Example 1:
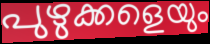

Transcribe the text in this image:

പുഴുക്കളെയും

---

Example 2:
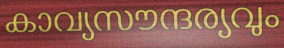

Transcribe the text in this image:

കാവ്യസൗന്ദര്യവും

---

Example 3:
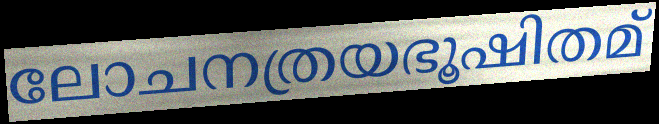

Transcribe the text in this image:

ലോചനത്രയഭൂഷിതമ്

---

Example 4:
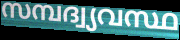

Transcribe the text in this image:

സമ്പദ്വ്യവസ്ഥ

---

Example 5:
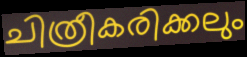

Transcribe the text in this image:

ചിത്രീകരിക്കലും